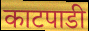
काटपाडी